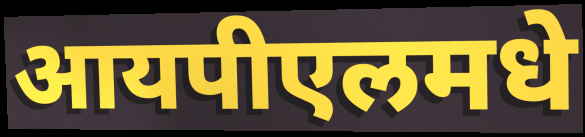
आयपीएलमधे